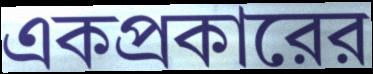
একপ্রকারের